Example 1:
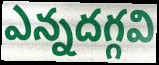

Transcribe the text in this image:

ఎన్నదగ్గవి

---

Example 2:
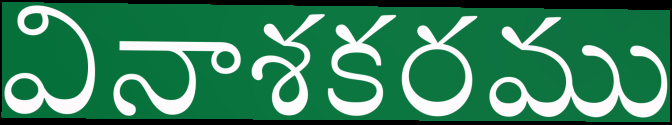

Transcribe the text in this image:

వినాశకరము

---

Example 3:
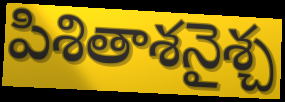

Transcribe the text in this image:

పిశితాశనైశ్చ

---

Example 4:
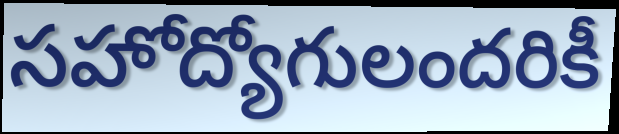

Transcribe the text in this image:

సహోద్యోగులందరికీ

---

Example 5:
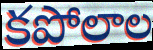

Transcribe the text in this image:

కపోలాల